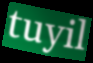
tuyil